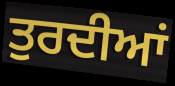
ਤੁਰਦੀਆਂ